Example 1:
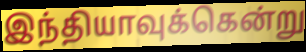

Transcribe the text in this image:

இந்தியாவுக்கென்று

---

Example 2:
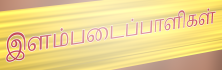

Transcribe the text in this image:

இளம்படைப்பாளிகள்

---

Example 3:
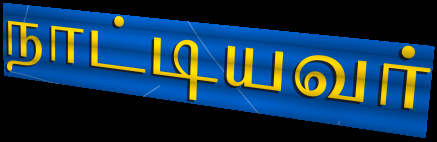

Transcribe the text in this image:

நாட்டியவர்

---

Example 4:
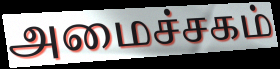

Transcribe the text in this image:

அமைச்சகம்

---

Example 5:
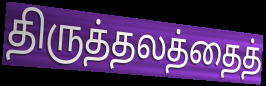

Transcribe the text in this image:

திருத்தலத்தைத்